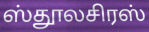
ஸ்தூலசிரஸ்